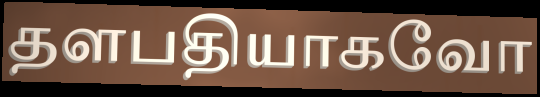
தளபதியாகவோ